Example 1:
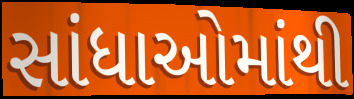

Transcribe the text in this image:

સાંધાઓમાંથી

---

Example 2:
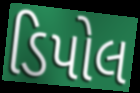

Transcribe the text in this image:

ડિપોલ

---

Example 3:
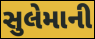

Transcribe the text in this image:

સુલેમાની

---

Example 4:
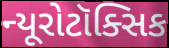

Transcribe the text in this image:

ન્યૂરોટૉક્સિક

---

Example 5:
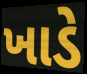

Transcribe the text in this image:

ખાડે